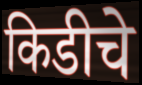
किडीचे